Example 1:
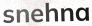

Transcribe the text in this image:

snehna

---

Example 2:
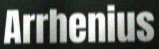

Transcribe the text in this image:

Arrhenius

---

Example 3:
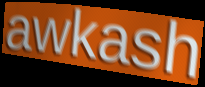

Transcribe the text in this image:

awkash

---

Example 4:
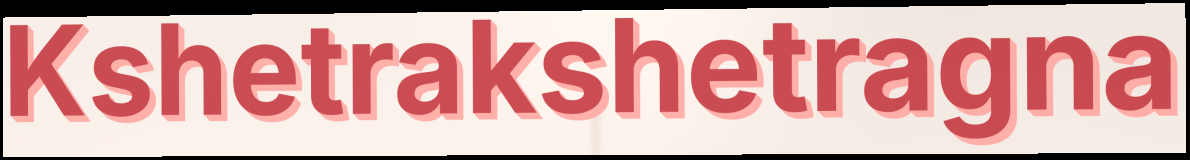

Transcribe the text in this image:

Kshetrakshetragna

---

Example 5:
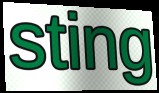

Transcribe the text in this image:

sting